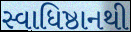
સ્વાધિષ્ઠાનથી